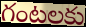
గంటలకు